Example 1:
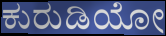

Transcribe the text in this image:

ಕುರುಡಿಯೋ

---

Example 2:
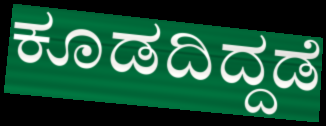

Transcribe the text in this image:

ಕೂಡದಿದ್ದಡೆ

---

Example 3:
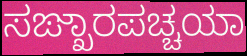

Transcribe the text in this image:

ಸಙ್ಖಾರಪಚ್ಚಯಾ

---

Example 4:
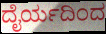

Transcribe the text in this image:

ದೈರ್ಯದಿಂದ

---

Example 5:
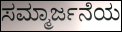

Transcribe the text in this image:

ಸಮ್ಮಾರ್ಜನೆಯ